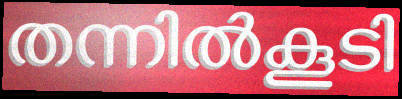
തന്നിൽകൂടി